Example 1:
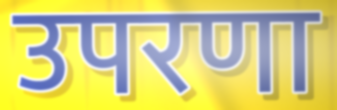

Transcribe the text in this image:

उपरणा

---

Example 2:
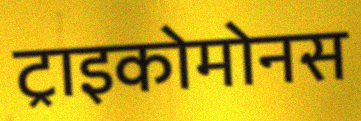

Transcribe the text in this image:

ट्राइकोमोनस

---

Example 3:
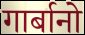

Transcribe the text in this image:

गार्बानो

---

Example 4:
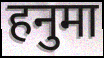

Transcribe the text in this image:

हनुमा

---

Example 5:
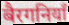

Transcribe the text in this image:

बैरगनियाँ